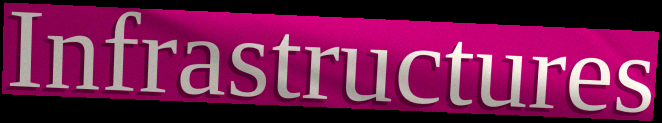
Infrastructures